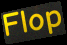
Flop